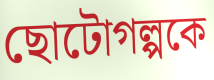
ছোটোগল্পকে